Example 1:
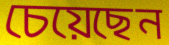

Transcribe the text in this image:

চেয়েছেন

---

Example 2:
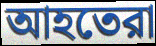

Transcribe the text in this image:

আহতেরা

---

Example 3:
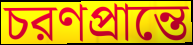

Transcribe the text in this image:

চরণপ্রান্তে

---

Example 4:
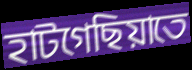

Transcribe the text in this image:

হাটগেছিয়াতে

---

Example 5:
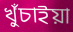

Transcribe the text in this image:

খুঁচাইয়া